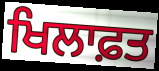
ਖਿਲਾਫ਼ਤ